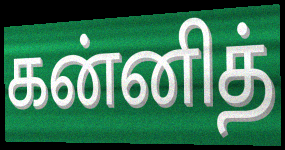
கன்னித்